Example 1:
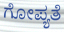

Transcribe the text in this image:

ಗೋಪ್ಯತೆ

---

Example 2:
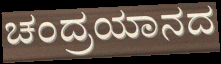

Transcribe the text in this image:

ಚಂದ್ರಯಾನದ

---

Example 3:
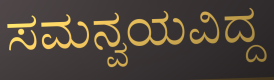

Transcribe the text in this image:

ಸಮನ್ವಯವಿದ್ದ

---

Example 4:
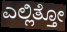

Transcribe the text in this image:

ಎಲ್ಲಿತ್ತೋ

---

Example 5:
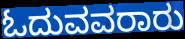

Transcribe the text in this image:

ಓದುವವರಾರು